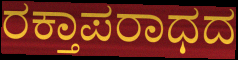
ರಕ್ತಾಪರಾಧದ